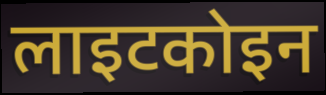
लाइटकोइन